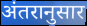
अंतरानुसार